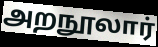
அறநூலார்